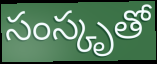
సంస్కృతో